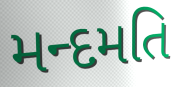
મન્દમતિ